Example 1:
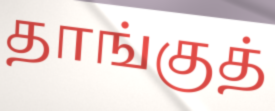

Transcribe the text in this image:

தாங்குத்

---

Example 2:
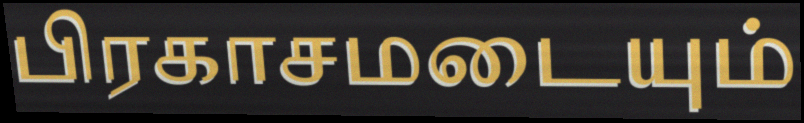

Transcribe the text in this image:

பிரகாசமடையும்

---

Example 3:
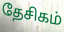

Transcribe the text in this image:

தேசிகம்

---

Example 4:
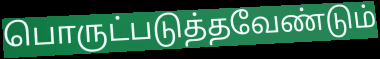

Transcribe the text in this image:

பொருட்படுத்தவேண்டும்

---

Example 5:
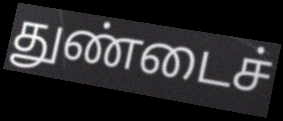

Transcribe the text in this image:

துண்டைச்